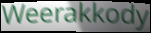
Weerakkody